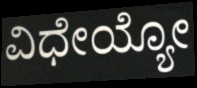
ವಿಧೇಯ್ಯೋ